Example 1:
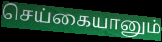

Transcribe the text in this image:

செய்கையானும்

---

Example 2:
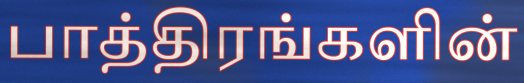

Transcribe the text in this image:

பாத்திரங்களின்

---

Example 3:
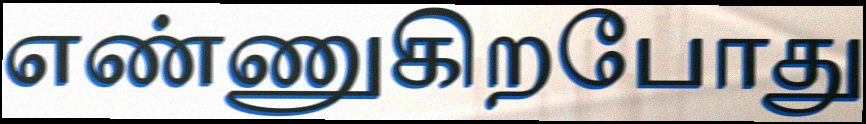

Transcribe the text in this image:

எண்ணுகிறபோது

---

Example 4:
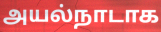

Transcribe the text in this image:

அயல்நாடாக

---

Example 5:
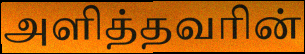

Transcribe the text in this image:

அளித்தவரின்